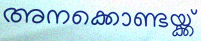
അനക്കൊണ്ടയ്ക്ക്